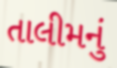
તાલીમનું